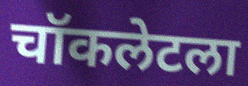
चॉकलेटला